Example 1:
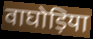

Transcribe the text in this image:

वाघोड़िया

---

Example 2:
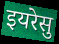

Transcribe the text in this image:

इयरेसु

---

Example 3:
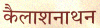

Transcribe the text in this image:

कैलाशनाथन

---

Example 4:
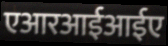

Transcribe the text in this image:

एआरआईआईए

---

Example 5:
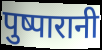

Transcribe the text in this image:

पुष्पारानी